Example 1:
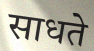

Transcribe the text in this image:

साधते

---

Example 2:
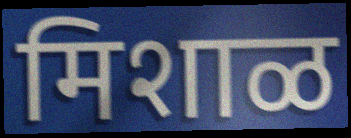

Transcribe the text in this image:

मिशाळ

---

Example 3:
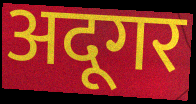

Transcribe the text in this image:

अदूगर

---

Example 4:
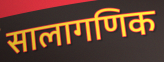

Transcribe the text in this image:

सालागणिक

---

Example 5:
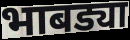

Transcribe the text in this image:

भाबड्या